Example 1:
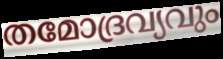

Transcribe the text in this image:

തമോദ്രവ്യവും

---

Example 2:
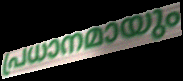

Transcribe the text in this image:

പ്രധാനമായും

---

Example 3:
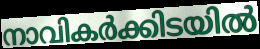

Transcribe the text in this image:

നാവികർക്കിടയിൽ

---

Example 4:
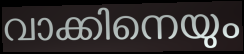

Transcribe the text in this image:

വാക്കിനെയും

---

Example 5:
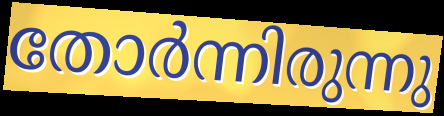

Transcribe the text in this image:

തോർന്നിരുന്നു